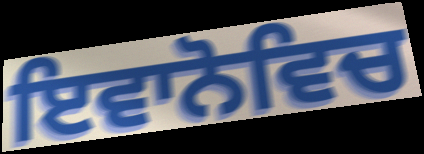
ਇਵਾਨੋਵਿਚ